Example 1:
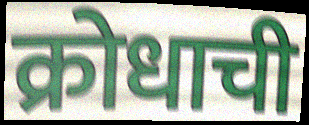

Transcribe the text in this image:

क्रोधाची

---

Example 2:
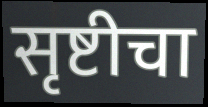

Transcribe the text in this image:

सृष्टीचा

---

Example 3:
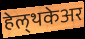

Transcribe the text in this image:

हेल्थकेअर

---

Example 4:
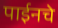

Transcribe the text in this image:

पाईनचे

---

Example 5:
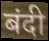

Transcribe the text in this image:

बंदी